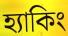
হ্যাকিং